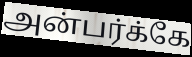
அன்பர்க்கே